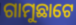
ଗାମୁଛାଟେ